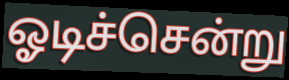
ஓடிச்சென்று